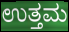
ಉತ್ತಮ